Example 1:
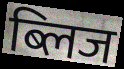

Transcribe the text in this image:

ब्लिज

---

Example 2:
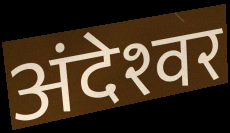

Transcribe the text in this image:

अंदेश्वर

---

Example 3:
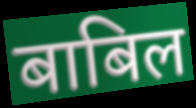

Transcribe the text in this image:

बाबिल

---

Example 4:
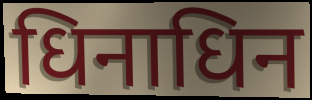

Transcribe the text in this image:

धिनाधिन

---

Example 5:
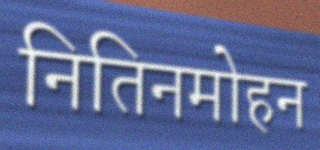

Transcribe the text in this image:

नितिनमोहन